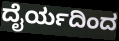
ದೈರ್ಯದಿಂದ